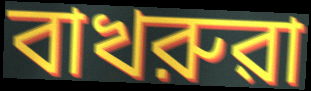
বাখৰুৱা